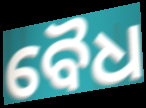
ବୈଧ